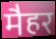
मैहर